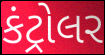
કંટ્રોલર